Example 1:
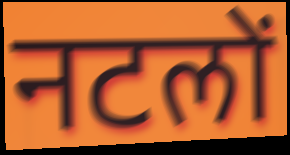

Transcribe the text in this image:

नटलों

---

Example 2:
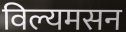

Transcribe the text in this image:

विल्यमसन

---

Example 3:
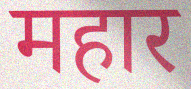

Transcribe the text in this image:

महार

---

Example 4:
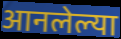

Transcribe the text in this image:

आनलेल्या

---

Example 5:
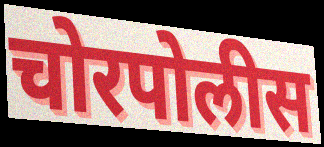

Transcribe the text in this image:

चोरपोलीस